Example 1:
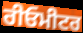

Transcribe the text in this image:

ਰੀਓਮੀਟਰ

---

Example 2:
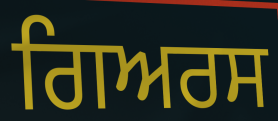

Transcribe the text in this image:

ਗਿਅਰਸ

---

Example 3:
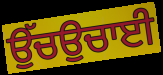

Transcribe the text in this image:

ਉੱਚਉਚਾਈ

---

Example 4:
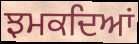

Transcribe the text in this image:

ਝਮਕਦਿਆਂ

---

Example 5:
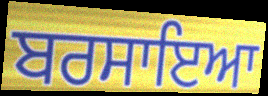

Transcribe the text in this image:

ਬਰਸਾਇਆ